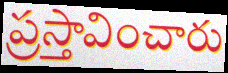
ప్రస్తావించారు